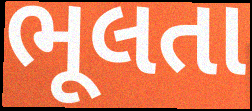
ભૂલતા